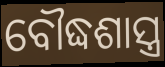
ବୌଦ୍ଧଶାସ୍ତ୍ର